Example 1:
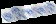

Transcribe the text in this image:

গুটিপোকাটা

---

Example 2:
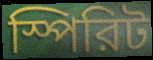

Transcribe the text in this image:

স্পিরিট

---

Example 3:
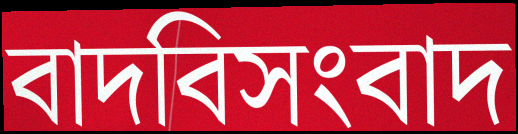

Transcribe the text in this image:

বাদবিসংবাদ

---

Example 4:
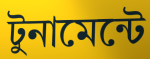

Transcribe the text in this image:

টুনামেন্টে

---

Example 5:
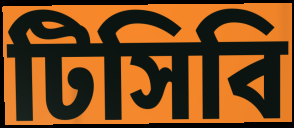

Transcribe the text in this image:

টিসিবি